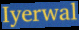
Iyerwal